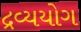
દ્રવ્યયોગ